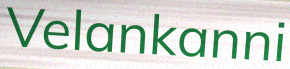
Velankanni